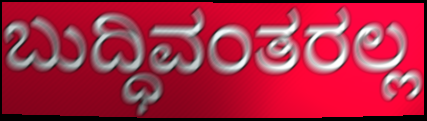
ಬುದ್ಧಿವಂತರಲ್ಲ